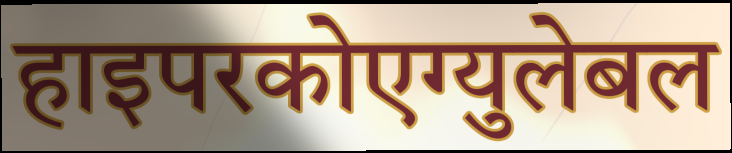
हाइपरकोएग्युलेबल